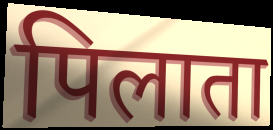
पिलाता